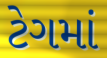
ટેગમાં